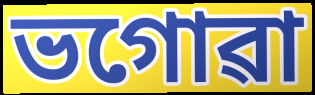
ভগোৱা